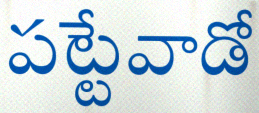
పట్టేవాడో